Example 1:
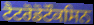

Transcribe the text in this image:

ਟੈਟਰੋਡੋਟੌਕਸਿਨ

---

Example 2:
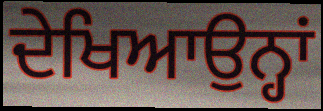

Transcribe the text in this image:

ਦੇਖਿਆਉਨ੍ਹਾਂ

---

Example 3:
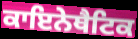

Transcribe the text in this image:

ਕਾਇਨੇਥੈਟਿਕ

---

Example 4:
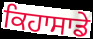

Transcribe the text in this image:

ਕਿਹਾਸਾਡੇ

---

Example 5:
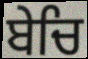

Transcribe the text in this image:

ਬੇਚਿ